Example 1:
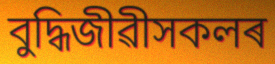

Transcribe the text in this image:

বুদ্ধিজীৱীসকলৰ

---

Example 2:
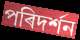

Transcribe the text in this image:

পৰিদৰ্শন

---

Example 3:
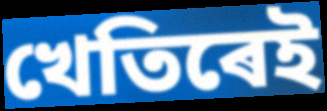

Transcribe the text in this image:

খেতিৰেই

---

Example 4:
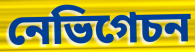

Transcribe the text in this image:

নেভিগেচন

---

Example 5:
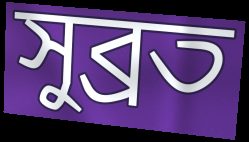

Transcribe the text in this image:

সুব্ৰত